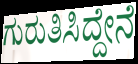
ಗುರುತಿಸಿದ್ದೇನೆ